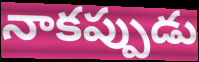
నాకప్పుడు